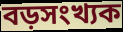
বড়সংখ্যক